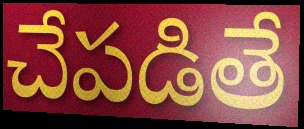
చేపడితే